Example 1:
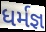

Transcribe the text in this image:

ધર્મજ્ઞ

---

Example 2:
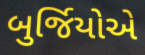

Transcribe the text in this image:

બુર્જિયોએ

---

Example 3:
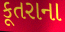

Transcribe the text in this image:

કૂતરાના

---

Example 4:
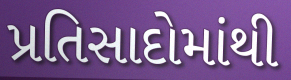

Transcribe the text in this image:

પ્રતિસાદોમાંથી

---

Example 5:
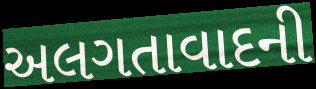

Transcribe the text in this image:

અલગતાવાદની